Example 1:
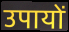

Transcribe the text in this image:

उपायों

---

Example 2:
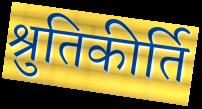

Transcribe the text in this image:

श्रुतिकीर्ति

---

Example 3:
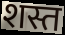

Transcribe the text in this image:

शस्त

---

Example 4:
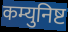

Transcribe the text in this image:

कम्युनिष्ट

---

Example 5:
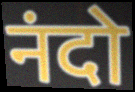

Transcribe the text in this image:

नंदो